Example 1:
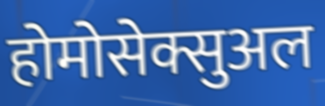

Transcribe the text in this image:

होमोसेक्सुअल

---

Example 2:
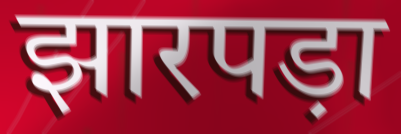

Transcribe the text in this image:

झारपड़ा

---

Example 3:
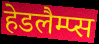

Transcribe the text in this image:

हेडलैम्प्स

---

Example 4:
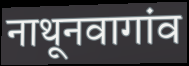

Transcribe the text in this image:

नाथूनवागांव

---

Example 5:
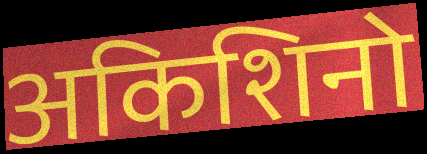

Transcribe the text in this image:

अकिशिनो